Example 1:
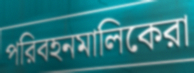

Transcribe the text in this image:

পরিবহনমালিকেরা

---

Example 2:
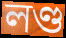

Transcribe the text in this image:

লণ্ড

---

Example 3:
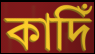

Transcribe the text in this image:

কাদিঁ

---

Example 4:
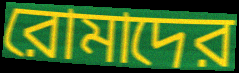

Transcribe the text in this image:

রোমাদের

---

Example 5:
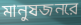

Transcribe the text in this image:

মানুষজনরে